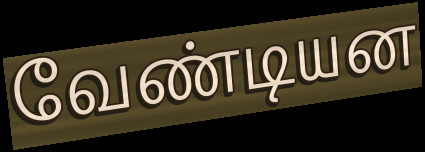
வேண்டியன